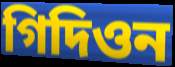
গিদিওন